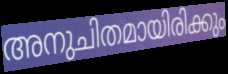
അനുചിതമായിരിക്കും